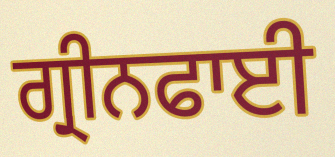
ਗ੍ਰੀਨਫਾਈ